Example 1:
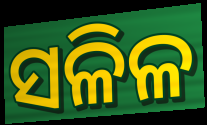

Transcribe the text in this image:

ସଳିଳ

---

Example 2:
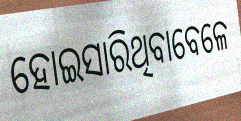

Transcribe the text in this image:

ହୋଇସାରିଥିବାବେଳେ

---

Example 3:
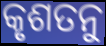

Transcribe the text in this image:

କୃଶତନୁ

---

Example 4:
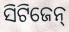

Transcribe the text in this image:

ସିଟିଜେନ୍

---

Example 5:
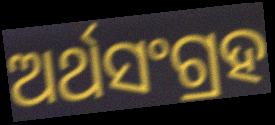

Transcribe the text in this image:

ଅର୍ଥସଂଗ୍ରହ